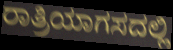
ರಾತ್ರಿಯಾಗಸದಲ್ಲಿ